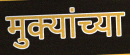
मुक्यांच्या